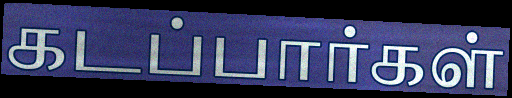
கடப்பார்கள்